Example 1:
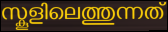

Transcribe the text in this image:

സ്കൂളിലെത്തുന്നത്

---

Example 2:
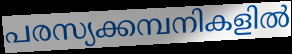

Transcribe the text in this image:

പരസ്യക്കമ്പനികളിൽ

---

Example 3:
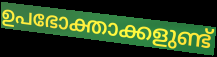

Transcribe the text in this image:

ഉപഭോക്താക്കളുണ്ട്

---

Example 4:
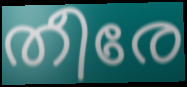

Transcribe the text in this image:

തീരേ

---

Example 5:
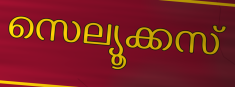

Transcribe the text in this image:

സെല്യൂക്കസ്